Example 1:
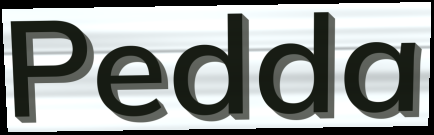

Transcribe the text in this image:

Pedda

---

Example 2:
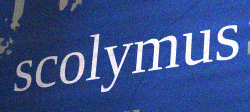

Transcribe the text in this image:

scolymus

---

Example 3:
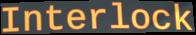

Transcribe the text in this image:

Interlock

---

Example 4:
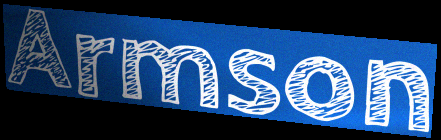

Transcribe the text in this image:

Armson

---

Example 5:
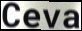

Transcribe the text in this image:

Ceva